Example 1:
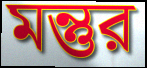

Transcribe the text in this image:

মন্তুর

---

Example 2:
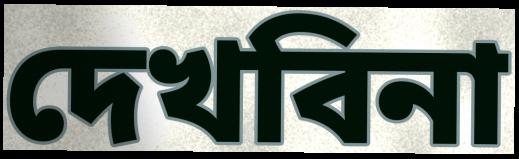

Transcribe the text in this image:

দেখবিনা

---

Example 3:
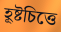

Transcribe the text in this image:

হূষ্টচিত্তে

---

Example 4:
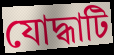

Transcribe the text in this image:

যোদ্ধাটি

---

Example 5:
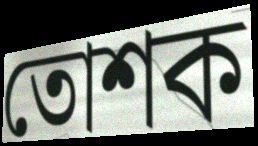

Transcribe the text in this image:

তোশক